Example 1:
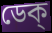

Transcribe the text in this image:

ডেক্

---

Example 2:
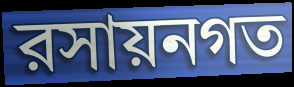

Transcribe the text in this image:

রসায়নগত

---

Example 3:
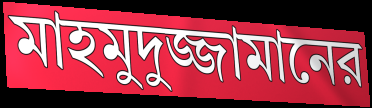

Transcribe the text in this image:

মাহমুদুজ্জামানের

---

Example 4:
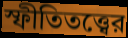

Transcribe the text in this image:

স্ফীতিতত্ত্বের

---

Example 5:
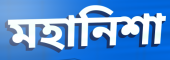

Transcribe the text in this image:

মহানিশা